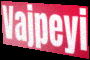
Vajpeyi